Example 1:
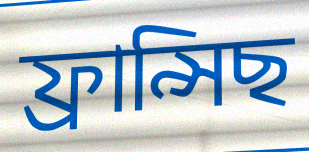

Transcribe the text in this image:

ফ্ৰান্সিছ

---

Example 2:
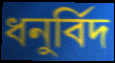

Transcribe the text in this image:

ধনুৰ্বিদ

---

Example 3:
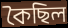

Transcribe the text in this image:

কৈছিল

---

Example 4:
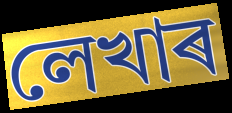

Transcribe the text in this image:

লেখাৰ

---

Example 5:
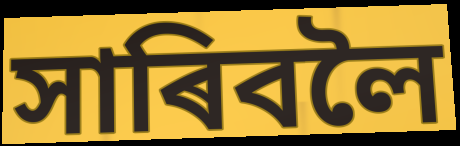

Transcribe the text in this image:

সাৰিবলৈ